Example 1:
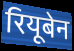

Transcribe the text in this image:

रियूबेन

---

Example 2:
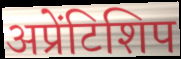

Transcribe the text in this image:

अप्रेंटिशिप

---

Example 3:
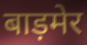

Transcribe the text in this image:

बाड़मेर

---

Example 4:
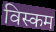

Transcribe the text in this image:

विस्कम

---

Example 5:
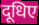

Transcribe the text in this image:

दूधिए